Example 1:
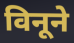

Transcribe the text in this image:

विनूने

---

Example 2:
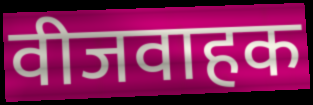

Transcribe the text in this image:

वीजवाहक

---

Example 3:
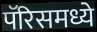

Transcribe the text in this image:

पॅरिसमध्ये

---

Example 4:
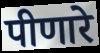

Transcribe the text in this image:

पीणारे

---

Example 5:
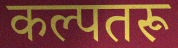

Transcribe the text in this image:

कल्पतरू